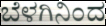
ಬೆಳಗಿನಿಂದ